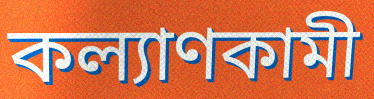
কল্যাণকামী